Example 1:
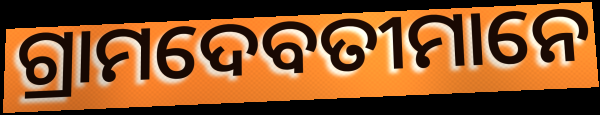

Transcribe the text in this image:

ଗ୍ରାମଦେବତୀମାନେ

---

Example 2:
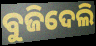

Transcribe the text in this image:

ବୁଜିଦେଲି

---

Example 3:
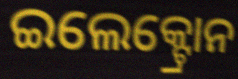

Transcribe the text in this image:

ଇଲେକ୍ଟ୍ରୋନ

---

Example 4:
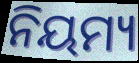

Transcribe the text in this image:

ନିୟମ୍ୟ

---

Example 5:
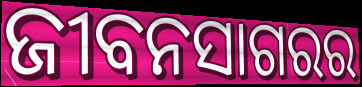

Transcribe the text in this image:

ଜୀବନସାଗରର